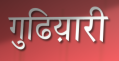
गुढिय़ारी